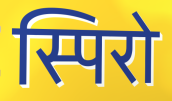
स्पिरो